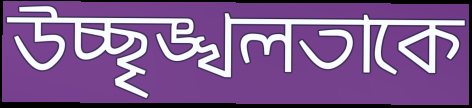
উচ্ছৃঙ্খলতাকে